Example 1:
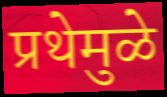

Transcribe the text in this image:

प्रथेमुळे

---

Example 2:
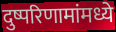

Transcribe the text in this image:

दुष्परिणामांमध्ये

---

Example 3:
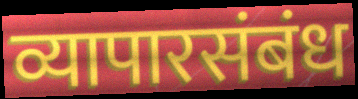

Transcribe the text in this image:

व्यापारसंबंध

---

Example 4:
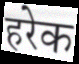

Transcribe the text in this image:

हरेक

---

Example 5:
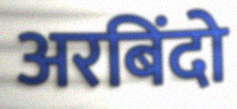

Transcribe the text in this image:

अरबिंदो